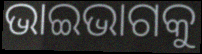
ଭାଇଭାଗକୁ